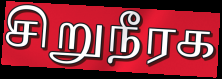
சிறுநீரக